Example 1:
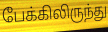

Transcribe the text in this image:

பேக்கிலிருந்து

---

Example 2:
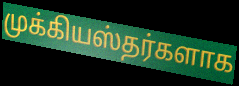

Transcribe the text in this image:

முக்கியஸ்தர்களாக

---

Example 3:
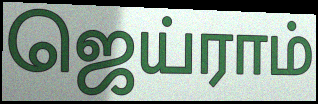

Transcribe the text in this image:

ஜெய்ராம்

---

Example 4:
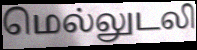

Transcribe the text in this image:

மெல்லுடலி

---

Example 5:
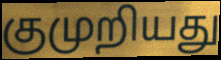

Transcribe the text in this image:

குமுறியது